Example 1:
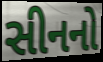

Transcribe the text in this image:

સીનનો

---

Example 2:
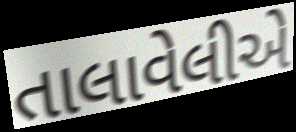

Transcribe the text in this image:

તાલાવેલીએ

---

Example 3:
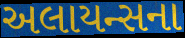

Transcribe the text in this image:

અલાયન્સના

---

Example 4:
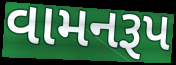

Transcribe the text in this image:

વામનરૂપ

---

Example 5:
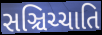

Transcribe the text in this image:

સઞ્ચિચ્ચાતિ